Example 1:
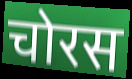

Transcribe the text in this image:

चोरस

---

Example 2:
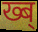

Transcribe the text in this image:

ख्ब्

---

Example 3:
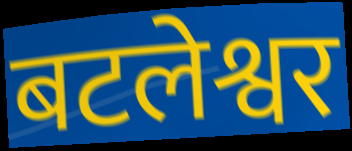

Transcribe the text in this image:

बटलेश्वर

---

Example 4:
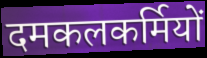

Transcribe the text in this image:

दमकलकर्मियों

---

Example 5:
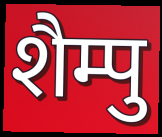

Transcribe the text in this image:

शैम्पु